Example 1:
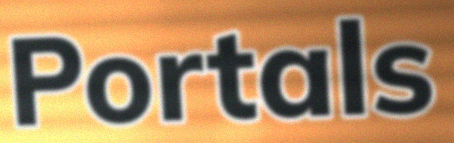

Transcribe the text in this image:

Portals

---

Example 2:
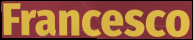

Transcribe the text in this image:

Francesco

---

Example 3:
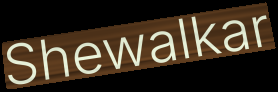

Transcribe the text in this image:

Shewalkar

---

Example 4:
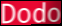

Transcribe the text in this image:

Dodo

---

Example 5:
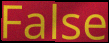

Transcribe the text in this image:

False